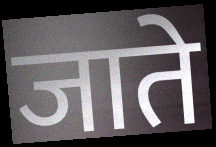
जाते